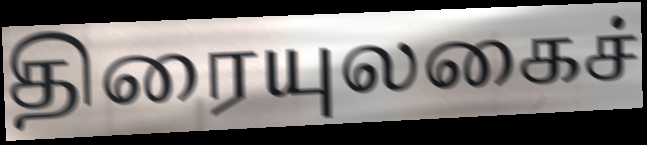
திரையுலகைச்